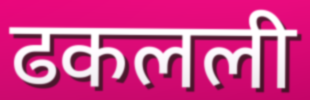
ढकलली